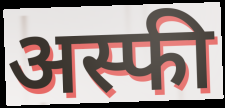
अस्फी